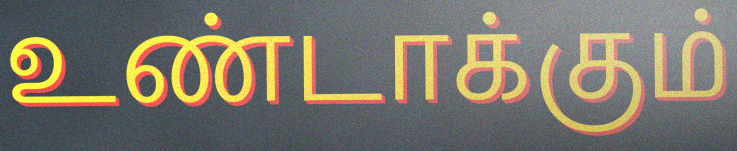
உண்டாக்கும்